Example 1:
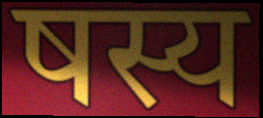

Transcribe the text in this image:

षस्य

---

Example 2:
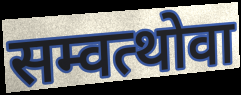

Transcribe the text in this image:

सम्वत्थोवा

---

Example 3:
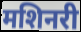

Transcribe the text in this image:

मशिनरी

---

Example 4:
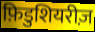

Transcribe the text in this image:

फ़िडुशियरीज़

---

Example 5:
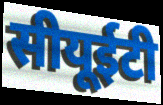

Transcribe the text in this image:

सीयूईटी